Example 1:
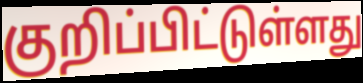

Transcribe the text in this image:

குறிப்பிட்டுள்ளது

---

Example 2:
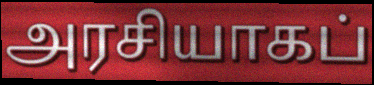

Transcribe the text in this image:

அரசியாகப்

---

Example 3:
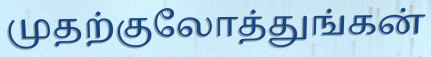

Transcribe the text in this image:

முதற்குலோத்துங்கன்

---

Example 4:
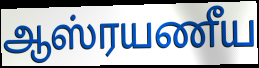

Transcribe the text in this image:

ஆஸ்ரயணீய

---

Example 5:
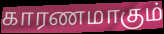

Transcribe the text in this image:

காரணமாகும்